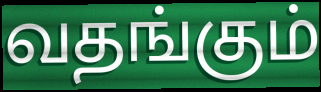
வதங்கும்